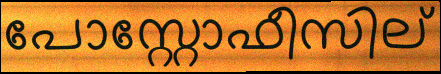
പോസ്റ്റോഫീസില്